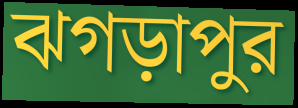
ঝগড়াপুর